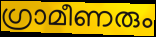
ഗ്രാമീണരും